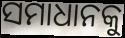
ସମାଧାନକୁ